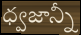
ధ్వజాన్నీ